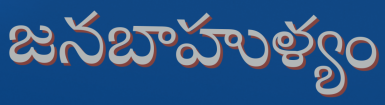
జనబాహుళ్యం